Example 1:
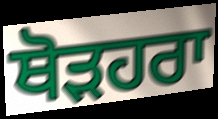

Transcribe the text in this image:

ਥੋੜਹਰਾ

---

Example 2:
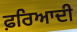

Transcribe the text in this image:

ਫ਼ਰਿਆਦੀ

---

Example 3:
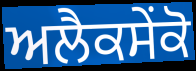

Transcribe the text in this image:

ਅਲੈਕਸੇਂਕੋ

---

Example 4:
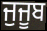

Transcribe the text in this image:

ਜੁਜੂਬ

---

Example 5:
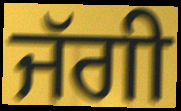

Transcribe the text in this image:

ਜੱਗੀ